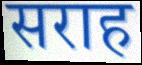
सराह